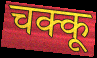
चक्कू